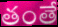
తంతే